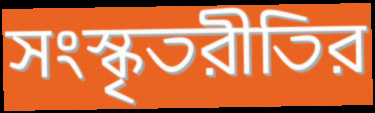
সংস্কৃতরীতির